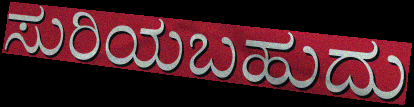
ಸುರಿಯಬಹುದು